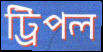
ট্রিপল